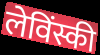
लेविंस्की